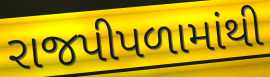
રાજપીપળામાંથી